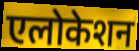
एलोकेशन